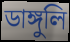
ডাঙ্গুলি